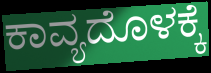
ಕಾವ್ಯದೊಳಕ್ಕೆ